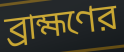
ব্রাহ্মণের